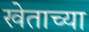
खेताच्या